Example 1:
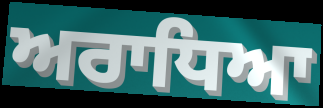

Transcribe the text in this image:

ਅਰਾਧਿਆ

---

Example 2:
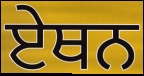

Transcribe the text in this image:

ਏਥਨ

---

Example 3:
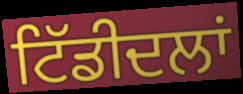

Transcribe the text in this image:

ਟਿੱਡੀਦਲਾਂ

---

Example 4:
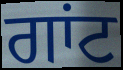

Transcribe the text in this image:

ਗਾਂਟ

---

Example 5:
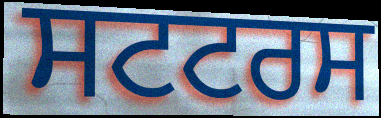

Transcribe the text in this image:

ਸਟਟਰਸ